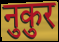
नुकुर